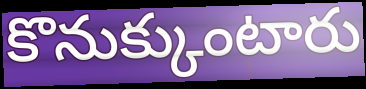
కొనుక్కుంటారు